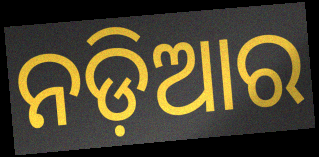
ନଡ଼ିଆର